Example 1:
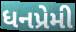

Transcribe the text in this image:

ધનપ્રેમી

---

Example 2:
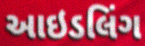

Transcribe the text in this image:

આઇડલિંગ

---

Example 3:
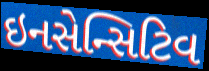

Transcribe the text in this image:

ઇનસેન્સિટિવ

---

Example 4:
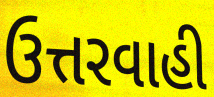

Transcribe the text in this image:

ઉત્તરવાહી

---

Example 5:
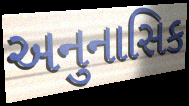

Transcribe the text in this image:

અનુનાસિક